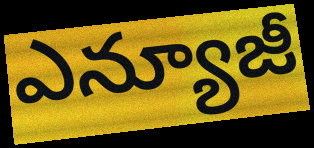
ఎన్యూజీ